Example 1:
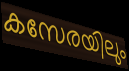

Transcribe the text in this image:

കസേരയിലും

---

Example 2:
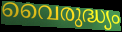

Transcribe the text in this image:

വൈരുദ്ധ്യം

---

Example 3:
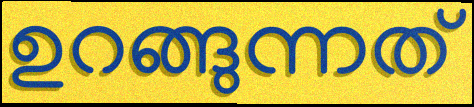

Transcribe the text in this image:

ഉറങ്ങുന്നത്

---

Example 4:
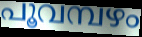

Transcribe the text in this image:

പൂവമ്പഴം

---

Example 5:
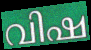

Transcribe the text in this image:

വിഷ